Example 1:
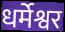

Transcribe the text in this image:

धर्मेश्वर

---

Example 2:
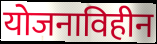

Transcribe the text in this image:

योजनाविहीन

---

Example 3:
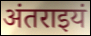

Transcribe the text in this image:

अंतराइयं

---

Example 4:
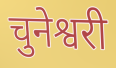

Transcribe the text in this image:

चुनेश्वरी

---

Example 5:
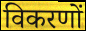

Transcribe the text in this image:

विकरणों